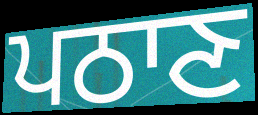
ਪਠਾਣ